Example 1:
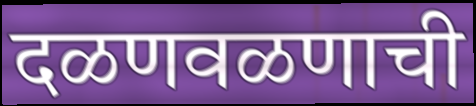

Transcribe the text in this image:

दळणवळणाची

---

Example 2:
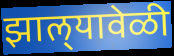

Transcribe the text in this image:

झाल्यावेळी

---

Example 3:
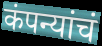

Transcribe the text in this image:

कंपन्यांचं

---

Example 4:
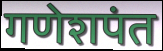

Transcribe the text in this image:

गणेशपंत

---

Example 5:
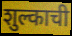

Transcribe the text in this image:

शुल्काची